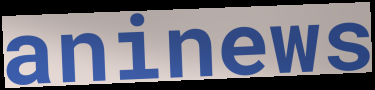
aninews